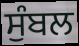
ਸੁੰਬਲ